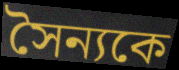
সৈন্যকে